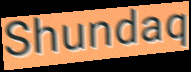
Shundaq